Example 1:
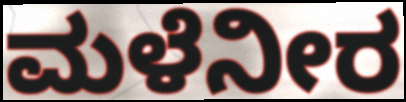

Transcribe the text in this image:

ಮಳೆನೀರ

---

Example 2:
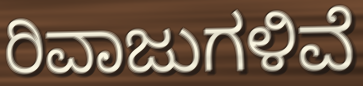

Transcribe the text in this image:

ರಿವಾಜುಗಳಿವೆ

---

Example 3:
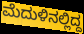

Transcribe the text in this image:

ಮೆದುಳಿನಲ್ಲಿದ್ದ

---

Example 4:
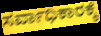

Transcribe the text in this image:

ಸರ್ವಾಧಿಕಾರಕ್ಕೆ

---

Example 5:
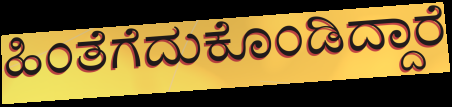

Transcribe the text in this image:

ಹಿಂತೆಗೆದುಕೊಂಡಿದ್ದಾರೆ